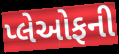
પ્લેઓફની